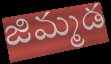
జిమ్మడ